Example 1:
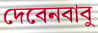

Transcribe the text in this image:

দেবেনবাবু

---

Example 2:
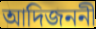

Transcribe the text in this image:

আদিজননী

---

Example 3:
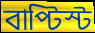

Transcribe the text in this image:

বাপ্টিস্ট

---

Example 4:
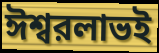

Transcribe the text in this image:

ঈশ্বরলাভই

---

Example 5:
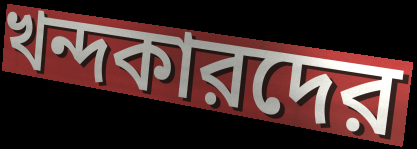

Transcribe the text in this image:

খন্দকারদের